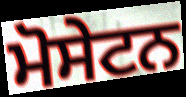
ਮੋਸੇਟਨ